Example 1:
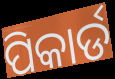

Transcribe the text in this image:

ପିକାର୍ଡ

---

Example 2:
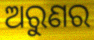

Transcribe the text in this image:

ଅରୁଣର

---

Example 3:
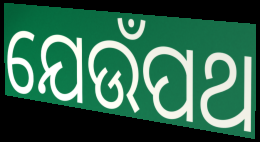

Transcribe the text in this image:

ଯେଉଁପଥ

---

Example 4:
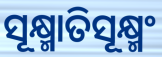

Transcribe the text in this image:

ସୂକ୍ଷ୍ମାତିସୂକ୍ଷ୍ମଂ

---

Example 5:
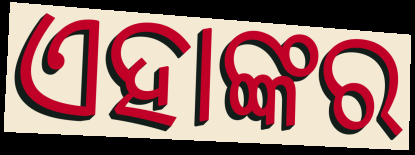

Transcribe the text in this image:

ଏହାଙ୍କର